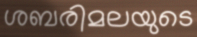
ശബരിമലയുടെ